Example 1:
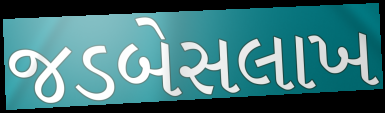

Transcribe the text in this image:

જડબેસલાખ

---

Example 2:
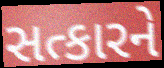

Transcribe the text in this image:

સત્કારને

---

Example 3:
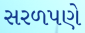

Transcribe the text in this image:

સરળપણે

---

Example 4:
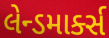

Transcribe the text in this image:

લેન્ડમાર્ક્સ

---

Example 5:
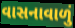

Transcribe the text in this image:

વાસનાવાળું